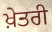
ਖ਼ੇਤਰੀ